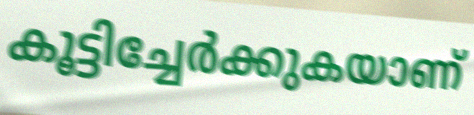
കൂട്ടിച്ചേർക്കുകയാണ്